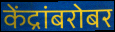
केंद्रांबरोबर